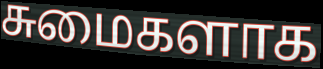
சுமைகளாக